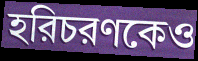
হরিচরণকেও